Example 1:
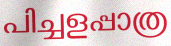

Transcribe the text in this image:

പിച്ചളപ്പാത്ര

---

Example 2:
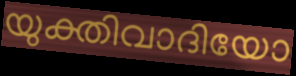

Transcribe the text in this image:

യുക്തിവാദിയോ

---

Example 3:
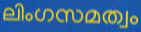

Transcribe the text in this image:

ലിംഗസമത്വം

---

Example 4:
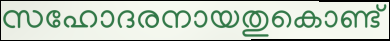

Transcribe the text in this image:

സഹോദരനായതുകൊണ്ട്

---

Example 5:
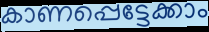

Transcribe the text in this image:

കാണപ്പെട്ടേക്കാം